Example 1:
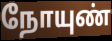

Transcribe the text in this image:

நோயுண்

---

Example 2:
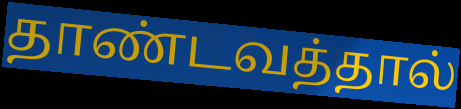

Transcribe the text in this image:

தாண்டவத்தால்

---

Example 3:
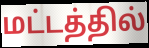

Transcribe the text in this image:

மட்டத்தில்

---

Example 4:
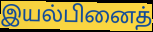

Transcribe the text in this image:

இயல்பினைத்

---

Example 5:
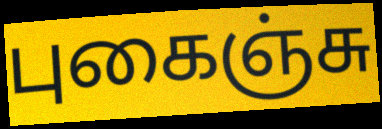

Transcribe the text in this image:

புகைஞ்சு